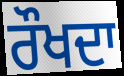
ਰੌਖਦਾ